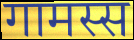
गामस्स